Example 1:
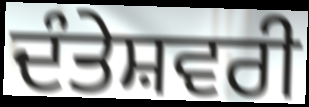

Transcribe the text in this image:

ਦੰਤੇਸ਼ਵਰੀ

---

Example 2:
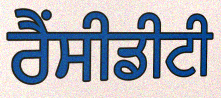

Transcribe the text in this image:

ਰੈਂਸੀਡੀਟੀ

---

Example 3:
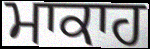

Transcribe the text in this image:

ਮਾਕਾਹ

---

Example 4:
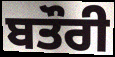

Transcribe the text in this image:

ਬਤੌਰੀ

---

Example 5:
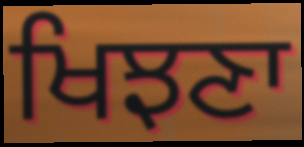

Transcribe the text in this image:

ਖਿਝਣਾ